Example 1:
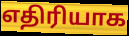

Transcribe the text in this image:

எதிரியாக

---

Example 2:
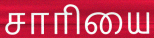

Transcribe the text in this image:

சாரியை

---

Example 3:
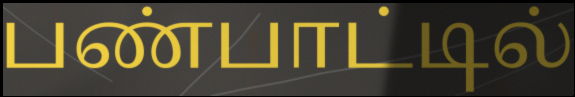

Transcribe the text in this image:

பண்பாட்டில்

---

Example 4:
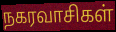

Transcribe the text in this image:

நகரவாசிகள்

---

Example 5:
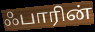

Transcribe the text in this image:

ஃபாரின்